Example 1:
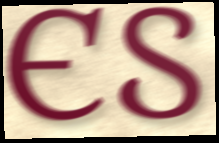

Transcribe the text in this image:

ES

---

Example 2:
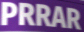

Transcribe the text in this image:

PRRAR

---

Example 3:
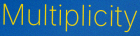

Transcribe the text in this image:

Multiplicity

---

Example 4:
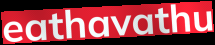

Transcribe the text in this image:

eathavathu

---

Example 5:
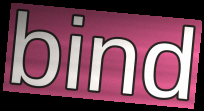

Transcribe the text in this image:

bind